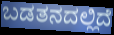
ಬಡತನದಲ್ಲಿದೆ